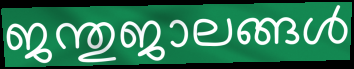
ജന്തുജാലങ്ങൾ